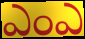
ఎంఎ